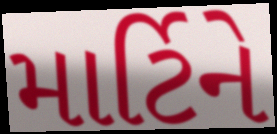
માર્ટિને